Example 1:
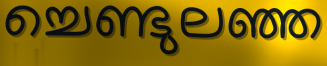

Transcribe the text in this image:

ച്ചെണ്ടുലഞ്ഞ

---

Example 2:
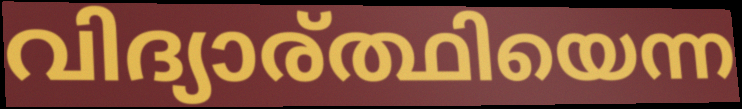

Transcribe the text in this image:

വിദ്യാര്ത്ഥിയെന്ന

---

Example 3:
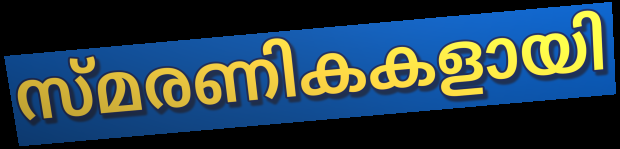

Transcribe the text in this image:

സ്മരണികകളായി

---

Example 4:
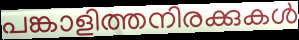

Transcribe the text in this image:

പങ്കാളിത്തനിരക്കുകൾ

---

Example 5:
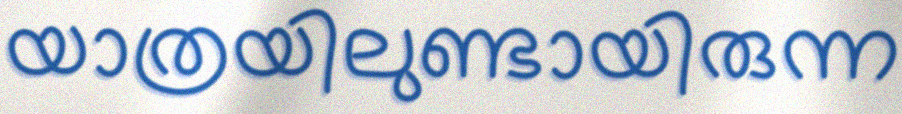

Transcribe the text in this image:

യാത്രയിലുണ്ടായിരുന്ന